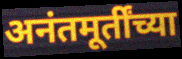
अनंतमूर्तींच्या